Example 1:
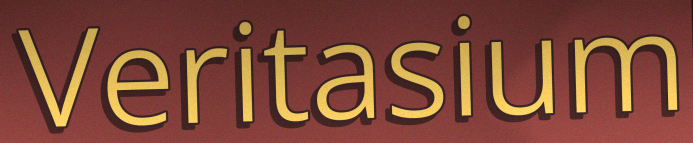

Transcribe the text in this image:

Veritasium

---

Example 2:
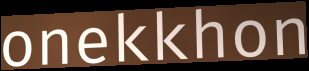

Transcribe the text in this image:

onekkhon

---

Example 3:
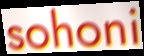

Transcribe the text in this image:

sohoni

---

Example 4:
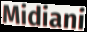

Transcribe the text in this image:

Midiani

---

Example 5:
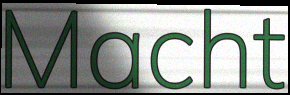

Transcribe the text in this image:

Macht